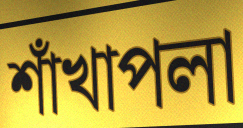
শাঁখাপলা